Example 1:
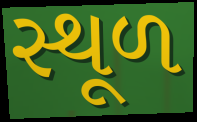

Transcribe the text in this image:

સ્થૂળ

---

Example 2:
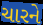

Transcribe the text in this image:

ચારને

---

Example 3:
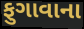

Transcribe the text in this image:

ફુગાવાના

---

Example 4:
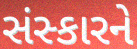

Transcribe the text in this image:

સંસ્કારને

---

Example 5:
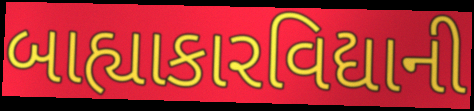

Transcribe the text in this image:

બાહ્યાકારવિદ્યાની